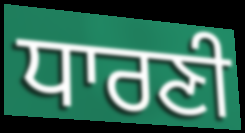
ਧਾਰਣੀ